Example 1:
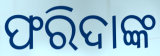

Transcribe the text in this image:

ଫରିଦାଙ୍କ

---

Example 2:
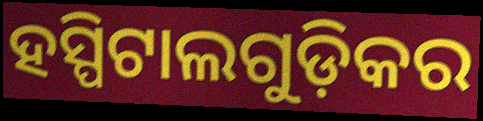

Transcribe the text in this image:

ହସ୍ପିଟାଲଗୁଡ଼ିକର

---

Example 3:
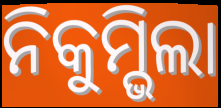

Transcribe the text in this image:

ନିକୁମ୍ଭିଲା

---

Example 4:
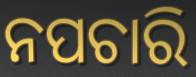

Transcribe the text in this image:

ନପଚାରି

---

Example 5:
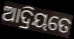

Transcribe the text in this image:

ଆଦ୍ରିୟତେ